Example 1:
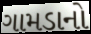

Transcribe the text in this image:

ગામડાનો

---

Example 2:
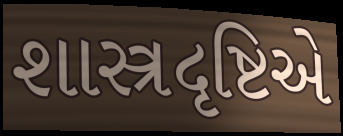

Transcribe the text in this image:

શાસ્ત્રદૃષ્ટિએ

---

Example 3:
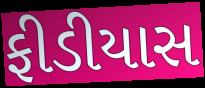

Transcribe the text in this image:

ફીડીયાસ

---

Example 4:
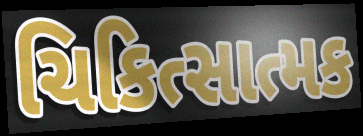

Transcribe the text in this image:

ચિકિત્સાત્મક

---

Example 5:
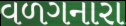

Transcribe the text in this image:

વળગનારા